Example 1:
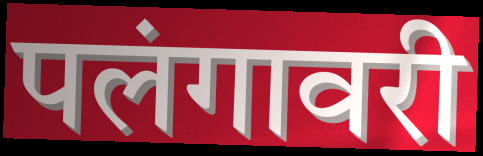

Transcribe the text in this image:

पलंगावरी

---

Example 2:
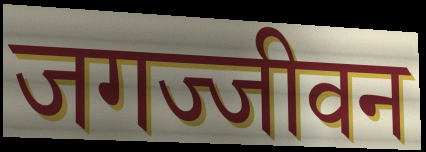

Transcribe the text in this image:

जगज्जीवन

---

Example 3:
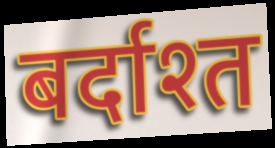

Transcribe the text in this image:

बर्दाश्त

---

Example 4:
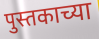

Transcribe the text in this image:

पुस्तकाच्या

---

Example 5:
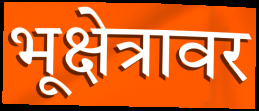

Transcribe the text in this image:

भूक्षेत्रावर